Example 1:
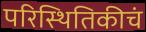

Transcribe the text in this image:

परिस्थितिकीचं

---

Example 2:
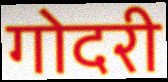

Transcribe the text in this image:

गोदरी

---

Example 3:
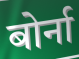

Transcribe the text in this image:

बोर्ना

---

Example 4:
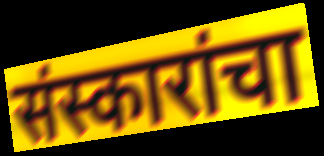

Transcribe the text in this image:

संस्कारांचा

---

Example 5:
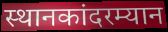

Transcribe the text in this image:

स्थानकांदरम्यान